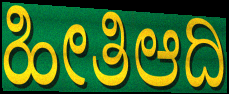
ಹೀತಿಆದಿ